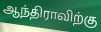
ஆந்திராவிற்கு